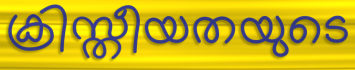
ക്രിസ്തീയതയുടെ